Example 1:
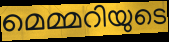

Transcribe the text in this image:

മെമ്മറിയുടെ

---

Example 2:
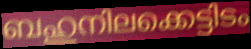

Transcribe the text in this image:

ബഹുനിലക്കെട്ടിടം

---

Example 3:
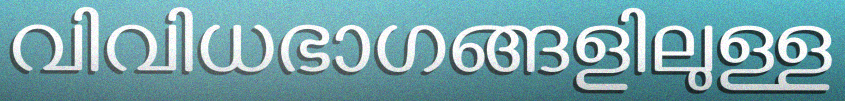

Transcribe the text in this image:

വിവിധഭാഗങ്ങളിലുള്ള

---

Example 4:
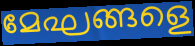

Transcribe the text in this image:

മേഘങ്ങളെ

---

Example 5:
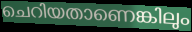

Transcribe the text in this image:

ചെറിയതാണെങ്കിലും